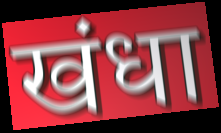
खंधा